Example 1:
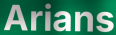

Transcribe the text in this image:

Arians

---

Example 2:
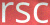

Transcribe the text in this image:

rsc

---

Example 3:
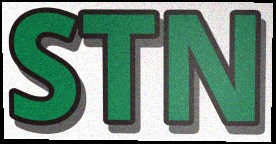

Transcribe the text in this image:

STN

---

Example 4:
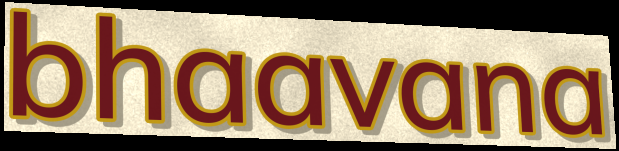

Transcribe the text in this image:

bhaavana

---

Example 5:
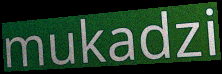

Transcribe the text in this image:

mukadzi